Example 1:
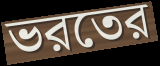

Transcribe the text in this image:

ভরতের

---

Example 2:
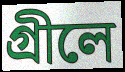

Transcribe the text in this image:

গ্রীলে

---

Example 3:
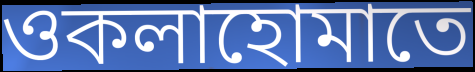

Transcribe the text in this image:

ওকলাহোমাতে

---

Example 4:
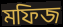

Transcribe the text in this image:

মফিজ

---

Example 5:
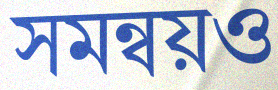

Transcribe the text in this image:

সমন্বয়ও